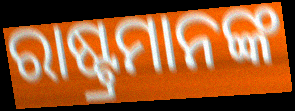
ରାଷ୍ଟ୍ରମାନଙ୍କ